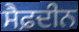
ਸੈਫ਼ਦੀਨ